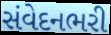
સંવેદનભરી